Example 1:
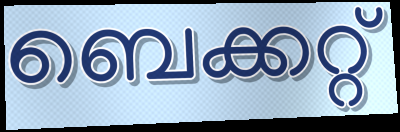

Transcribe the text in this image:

ബെക്കറ്റ്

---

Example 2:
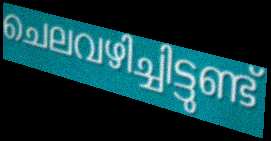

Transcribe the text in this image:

ചെലവഴിച്ചിട്ടുണ്ട്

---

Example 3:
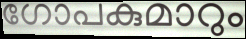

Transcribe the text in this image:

ഗോപകുമാറും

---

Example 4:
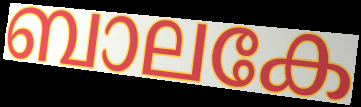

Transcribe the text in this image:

ബാലകേ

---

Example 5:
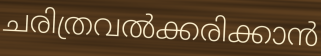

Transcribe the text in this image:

ചരിത്രവൽക്കരിക്കാൻ